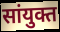
सांयुक्त